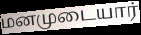
மனமுடையார்